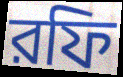
রফি